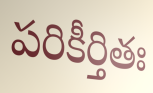
పరికీర్తితః